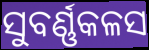
ସୁବର୍ଣ୍ଣକଳସ